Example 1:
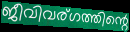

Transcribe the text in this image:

ജീവിവര്ഗത്തിന്റെ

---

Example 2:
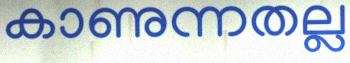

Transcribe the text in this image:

കാണുന്നതല്ല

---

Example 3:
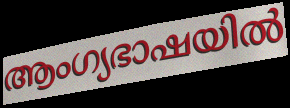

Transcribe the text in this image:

ആംഗ്യഭാഷയിൽ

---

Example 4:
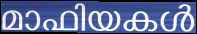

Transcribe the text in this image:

മാഫിയകൾ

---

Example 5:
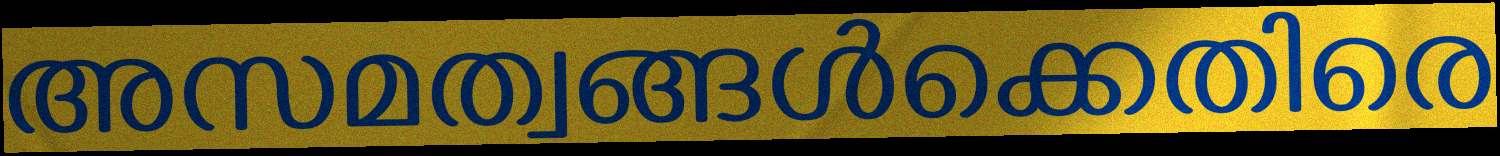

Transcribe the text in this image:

അസമത്വങ്ങൾക്കെതിരെ